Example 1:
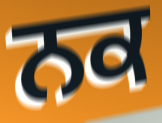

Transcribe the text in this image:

ਨਕ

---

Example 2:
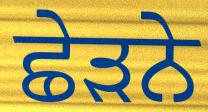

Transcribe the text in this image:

ਛੇੜਨੇ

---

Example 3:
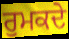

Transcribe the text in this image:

ਰੁਮਕਦੇ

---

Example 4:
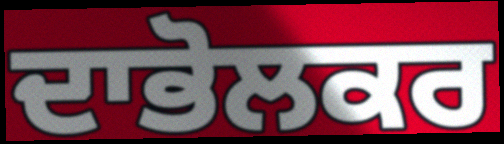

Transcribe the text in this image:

ਦਾਭੋਲਕਰ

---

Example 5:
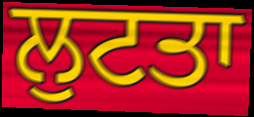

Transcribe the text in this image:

ਲੁਟਤਾ